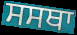
ਸਸਥਾ